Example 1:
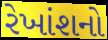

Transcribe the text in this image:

રેખાંશનો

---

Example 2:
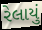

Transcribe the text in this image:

રેલાયું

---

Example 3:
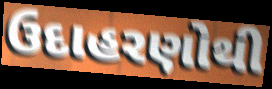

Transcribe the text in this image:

ઉદાહરણોથી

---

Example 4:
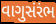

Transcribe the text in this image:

વાગુસંરંભ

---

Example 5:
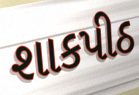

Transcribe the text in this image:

શાકપીઠ